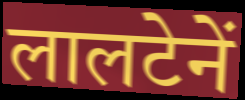
लालटेनें